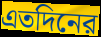
এতদিনের